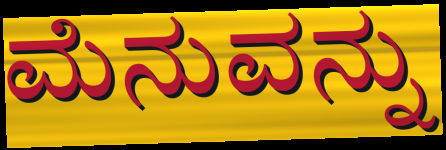
ಮೆನುವನ್ನು